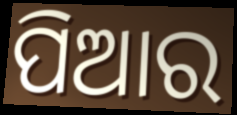
ପିଆର